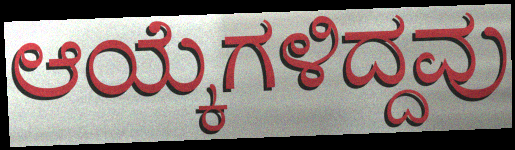
ಆಯ್ಕೆಗಳಿದ್ದವು